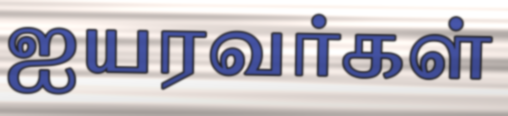
ஐயரவர்கள்